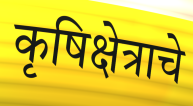
कृषिक्षेत्राचे